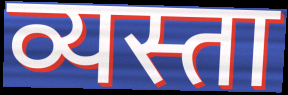
व्यस्ता